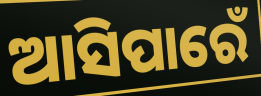
ଆସିପାରେଁ